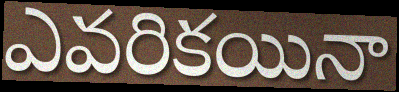
ఎవరికయినా